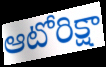
ఆటోరిక్షా